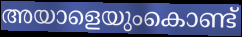
അയാളെയുംകൊണ്ട്